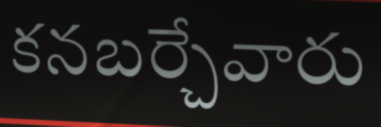
కనబర్చేవారు